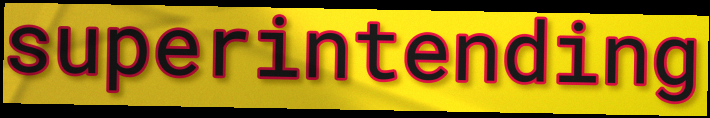
superintending